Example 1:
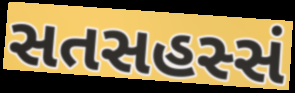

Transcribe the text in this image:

સતસહસ્સં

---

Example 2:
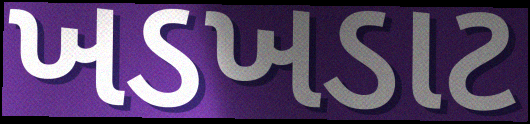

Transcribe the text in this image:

ખડખડાટ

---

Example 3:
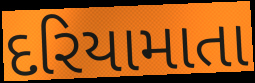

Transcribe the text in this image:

દરિયામાતા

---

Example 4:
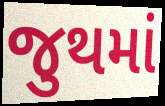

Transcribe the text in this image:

જુથમાં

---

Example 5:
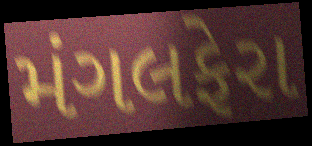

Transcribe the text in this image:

મંગલફેરા